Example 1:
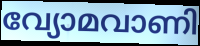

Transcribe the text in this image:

വ്യോമവാണി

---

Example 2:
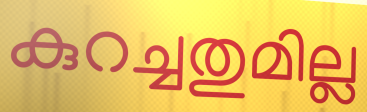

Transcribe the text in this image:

കുറച്ചതുമില്ല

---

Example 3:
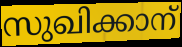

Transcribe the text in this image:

സുഖിക്കാന്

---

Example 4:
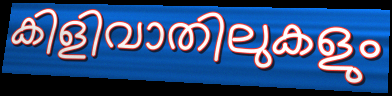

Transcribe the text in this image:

കിളിവാതിലുകളും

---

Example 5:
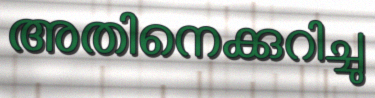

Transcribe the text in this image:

അതിനെക്കുറിച്ചു